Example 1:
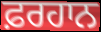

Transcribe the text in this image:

ਫ਼ਰਹਾਨ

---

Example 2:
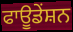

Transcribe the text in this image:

ਫਾਊਡੇਂਸ਼ਨ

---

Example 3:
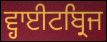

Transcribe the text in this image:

ਵ੍ਹਾਈਟਬ੍ਰਿਜ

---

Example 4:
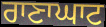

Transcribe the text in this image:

ਰਾਣਾਘਾਟ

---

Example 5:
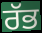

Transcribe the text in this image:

ਰੱਭ